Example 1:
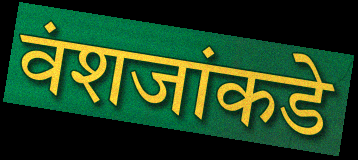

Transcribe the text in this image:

वंशजांकडे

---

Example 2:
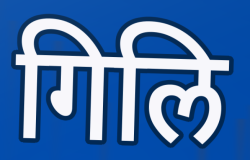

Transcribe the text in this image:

गिलि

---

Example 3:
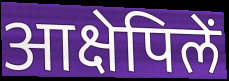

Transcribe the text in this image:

आक्षेपिलें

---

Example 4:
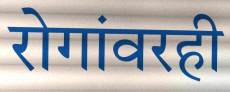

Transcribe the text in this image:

रोगांवरही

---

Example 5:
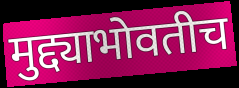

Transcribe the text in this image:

मुद्द्याभोवतीच